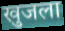
खुजला